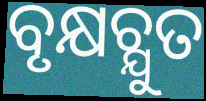
ବୃକ୍ଷଚ୍ଯୁତ